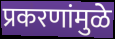
प्रकरणांमुळे